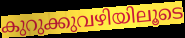
കുറുക്കുവഴിയിലൂടെ